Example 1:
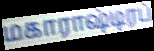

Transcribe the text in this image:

மகாராஷ்டிரப்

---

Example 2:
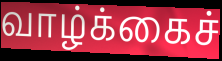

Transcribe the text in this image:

வாழ்க்கைச்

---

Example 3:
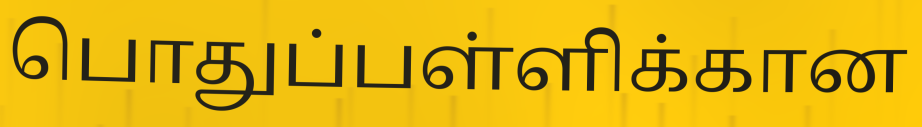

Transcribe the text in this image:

பொதுப்பள்ளிக்கான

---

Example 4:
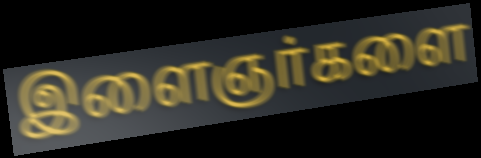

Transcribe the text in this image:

இளைஞர்களை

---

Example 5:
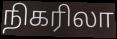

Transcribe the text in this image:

நிகரிலா